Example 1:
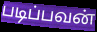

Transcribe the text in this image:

படிப்பவன்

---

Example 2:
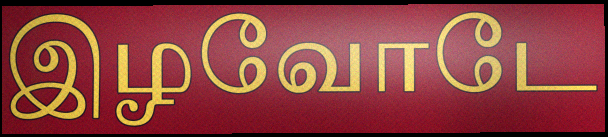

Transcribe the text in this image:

இழவோடே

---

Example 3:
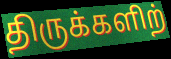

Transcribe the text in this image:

திருக்களிற்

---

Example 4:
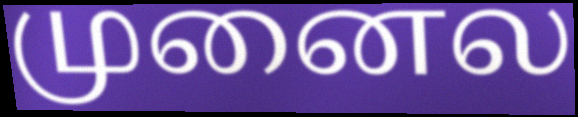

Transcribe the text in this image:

முனைல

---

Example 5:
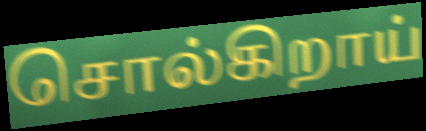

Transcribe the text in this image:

சொல்கிறாய்